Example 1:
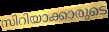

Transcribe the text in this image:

സിറിയാക്കാരുടെ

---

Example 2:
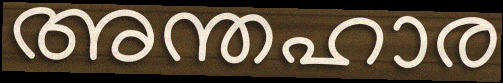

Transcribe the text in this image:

അന്തഹാര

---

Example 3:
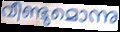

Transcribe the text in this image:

വീണ്ടുമൊന്നു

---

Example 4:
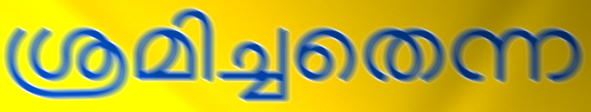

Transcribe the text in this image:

ശ്രമിച്ചതെന്ന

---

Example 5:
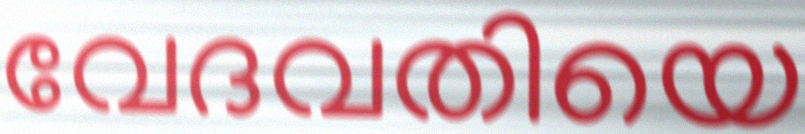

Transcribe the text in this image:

വേദവതിയെ